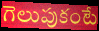
గెలుపుకంటే